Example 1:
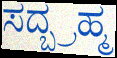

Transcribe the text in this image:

ಸದ್ಬ್ರಹ್ಮ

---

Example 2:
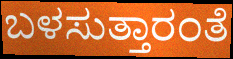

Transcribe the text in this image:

ಬಳಸುತ್ತಾರಂತೆ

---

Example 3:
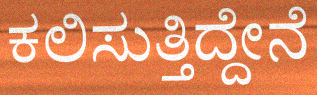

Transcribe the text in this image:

ಕಲಿಸುತ್ತಿದ್ದೇನೆ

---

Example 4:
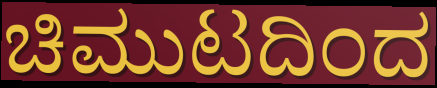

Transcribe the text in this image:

ಚಿಮುಟದಿಂದ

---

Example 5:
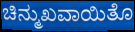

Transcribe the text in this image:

ಚಿನ್ಮುಖವಾಯಿತೊ